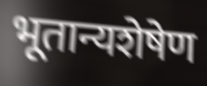
भूतान्यशेषेण